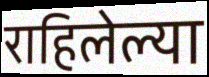
राहिलेल्या